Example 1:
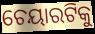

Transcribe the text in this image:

ଚେୟାରଟିକୁ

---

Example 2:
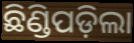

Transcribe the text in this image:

ଛିଣ୍ଡିପଡ଼ିଲା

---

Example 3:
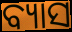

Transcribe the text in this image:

ବ୍ୟାସ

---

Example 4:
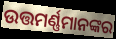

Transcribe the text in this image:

ଉତ୍ତମର୍ଣ୍ଣମାନଙ୍କର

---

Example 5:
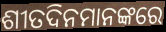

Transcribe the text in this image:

ଶୀତଦିନମାନଙ୍କରେ